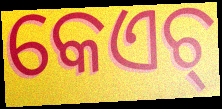
କେଏଚ୍